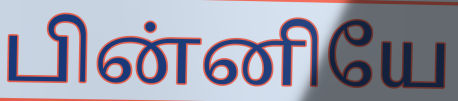
பின்னியே